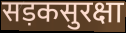
सड़कसुरक्षा